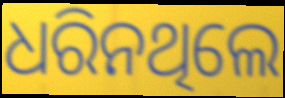
ଧରିନଥିଲେ